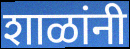
शाळांनी